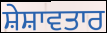
ਸ਼ੇਸ਼ਾਵਤਾਰ